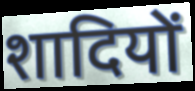
शादियों